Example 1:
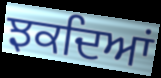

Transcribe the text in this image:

ਝਕਦਿਆਂ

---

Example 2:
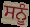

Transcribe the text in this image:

ਸਨੂੰ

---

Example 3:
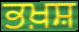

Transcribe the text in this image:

ਭਖ਼ਸ਼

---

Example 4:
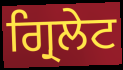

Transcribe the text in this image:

ਗ੍ਰਿਲੇਟ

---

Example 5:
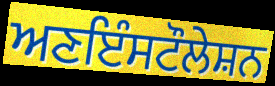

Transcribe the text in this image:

ਅਣਇੰਸਟੌਲੇਸ਼ਨ